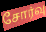
சோர்வு